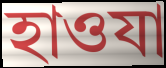
হাওযা